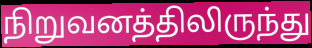
நிறுவனத்திலிருந்து